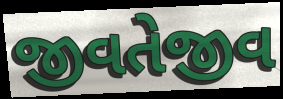
જીવતેજીવ